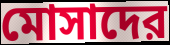
মোসাদের